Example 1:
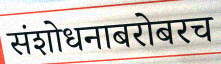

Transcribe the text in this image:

संशोधनाबरोबरच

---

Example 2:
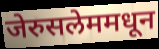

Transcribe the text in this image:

जेरुसलेममधून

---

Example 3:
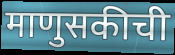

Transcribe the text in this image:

माणुसकीची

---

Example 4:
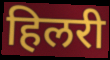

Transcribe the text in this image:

हिलरी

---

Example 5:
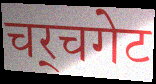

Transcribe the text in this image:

चर्चगेट